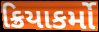
ક્રિયાકર્મો